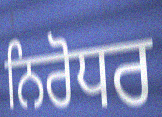
ਨਿਰੋਧਰ